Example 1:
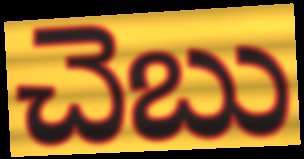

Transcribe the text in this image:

చెబు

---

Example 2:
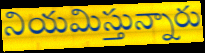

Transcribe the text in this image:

నియమిస్తున్నారు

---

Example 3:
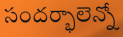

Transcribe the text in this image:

సందర్భాలెన్నో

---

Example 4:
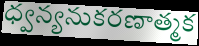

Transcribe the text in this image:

ధ్వన్యనుకరణాత్మక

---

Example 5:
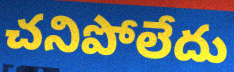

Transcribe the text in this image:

చనిపోలేదు